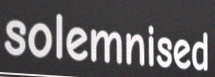
solemnised